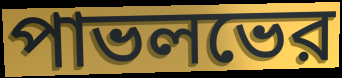
পাভলভের